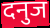
दनुज